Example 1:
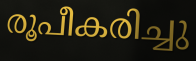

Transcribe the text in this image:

രൂപീകരിച്ചു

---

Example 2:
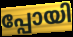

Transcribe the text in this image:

പ്പോയി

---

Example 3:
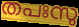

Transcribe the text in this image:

തപഃസു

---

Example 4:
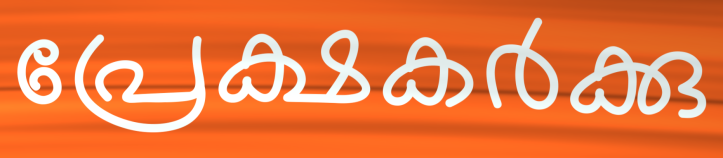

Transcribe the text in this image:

പ്രേക്ഷകർക്കു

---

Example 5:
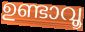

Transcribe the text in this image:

ഉണ്ടാവൂ